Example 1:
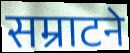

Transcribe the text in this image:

सम्राटने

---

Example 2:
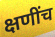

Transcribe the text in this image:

क्षणींच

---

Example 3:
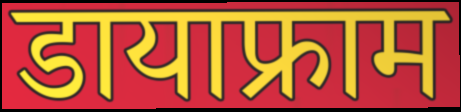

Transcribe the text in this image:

डायाफ्राम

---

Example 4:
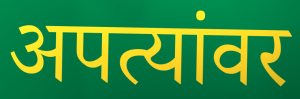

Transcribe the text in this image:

अपत्यांवर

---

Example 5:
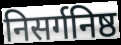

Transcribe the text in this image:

निसर्गनिष्ठ